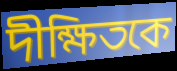
দীক্ষিতকে